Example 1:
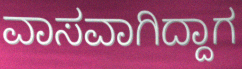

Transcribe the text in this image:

ವಾಸವಾಗಿದ್ದಾಗ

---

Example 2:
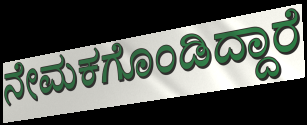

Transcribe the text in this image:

ನೇಮಕಗೊಂಡಿದ್ದಾರೆ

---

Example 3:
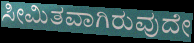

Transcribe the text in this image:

ಸೀಮಿತವಾಗಿರುವುದೇ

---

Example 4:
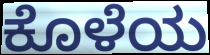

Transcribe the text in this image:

ಕೊಳೆಯ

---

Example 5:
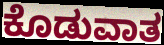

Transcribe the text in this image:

ಕೊಡುವಾತ